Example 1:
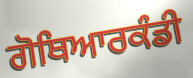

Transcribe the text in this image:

ਗੋਥਿਆਰਕੰਡੀ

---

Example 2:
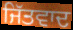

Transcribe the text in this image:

ਜਿੱਤਵਾਦ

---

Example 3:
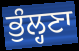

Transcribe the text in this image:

ਭੁੰਲ੍ਹਣਾ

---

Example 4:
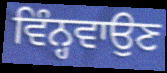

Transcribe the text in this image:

ਵਿੰਨ੍ਹਵਾਉਣ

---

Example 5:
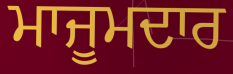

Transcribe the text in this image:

ਮਾਜੂਮਦਾਰ